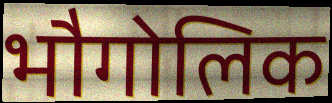
भौगोलिक